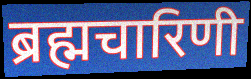
ब्रह्मचारिणी